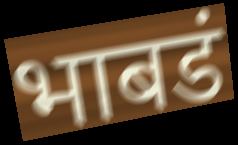
भाबडं